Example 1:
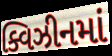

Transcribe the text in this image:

ક્વિઝીનમાં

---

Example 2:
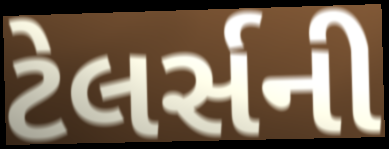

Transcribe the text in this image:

ટેલર્સની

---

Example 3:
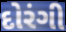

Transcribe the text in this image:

દોરંગી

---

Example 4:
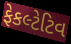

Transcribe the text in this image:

ફેકલ્ટેટિવ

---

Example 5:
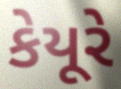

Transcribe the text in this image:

કેયૂરે